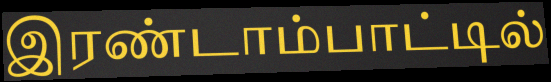
இரண்டாம்பாட்டில்